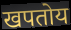
खपतोय